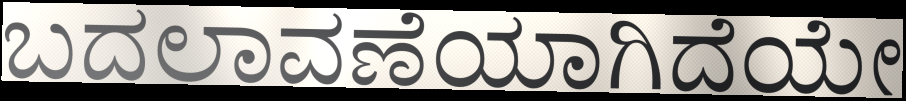
ಬದಲಾವಣೆಯಾಗಿದೆಯೇ